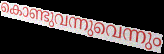
കൊണ്ടുവന്നുവെന്നും